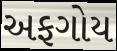
અફગોય